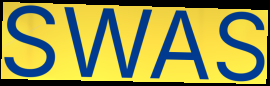
SWAS